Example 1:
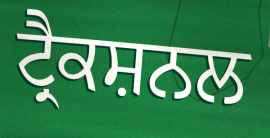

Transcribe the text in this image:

ਟ੍ਰੈਕਸ਼ਨਲ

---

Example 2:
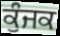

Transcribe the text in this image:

ਕੁੰਜਕ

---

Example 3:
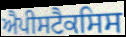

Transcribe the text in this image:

ਐਪੀਸਟੈਕਸਿਸ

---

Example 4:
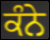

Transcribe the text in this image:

ਕੰਨੇ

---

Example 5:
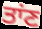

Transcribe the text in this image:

ਤਾਂਣ